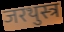
जरथुस्‍त्र